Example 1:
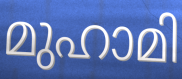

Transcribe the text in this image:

മുഹാമി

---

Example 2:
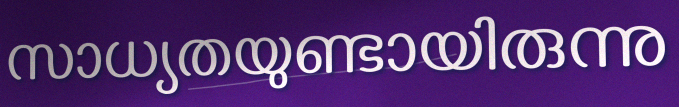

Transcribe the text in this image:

സാധ്യതയുണ്ടായിരുന്നു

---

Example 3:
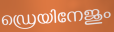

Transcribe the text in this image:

ഡ്രെയിനേജും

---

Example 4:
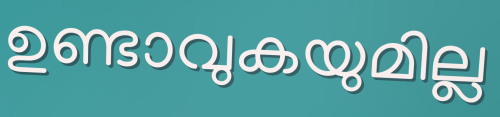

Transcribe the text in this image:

ഉണ്ടാവുകയുമില്ല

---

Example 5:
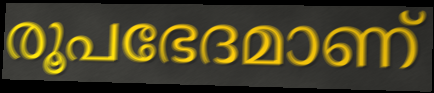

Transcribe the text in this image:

രൂപഭേദമാണ്